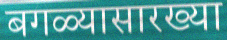
बगळ्यासारख्या